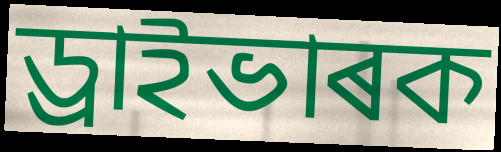
ড্ৰাইভাৰক